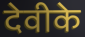
देवीके